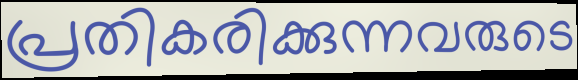
പ്രതികരിക്കുന്നവരുടെ